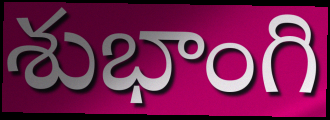
శుభాంగి